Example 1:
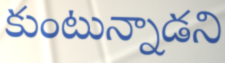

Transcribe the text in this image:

కుంటున్నాడని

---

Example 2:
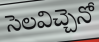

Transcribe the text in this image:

సెలవిచ్చెనో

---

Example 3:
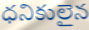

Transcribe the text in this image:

ధనికులైన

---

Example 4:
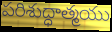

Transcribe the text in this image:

పరిశుద్ధాత్మయు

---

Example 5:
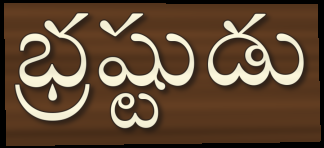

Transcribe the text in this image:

భ్రష్టుడు